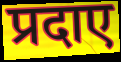
प्रदाए